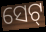
ସେଟ୍